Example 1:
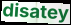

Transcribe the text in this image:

disatey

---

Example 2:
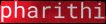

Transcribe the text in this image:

pharithi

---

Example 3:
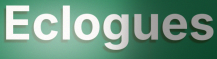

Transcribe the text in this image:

Eclogues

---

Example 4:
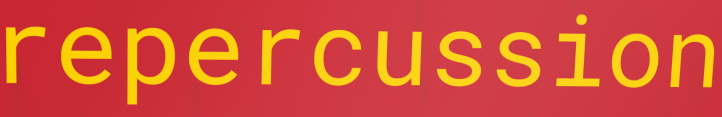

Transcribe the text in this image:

repercussion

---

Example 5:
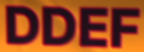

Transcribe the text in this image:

DDEF